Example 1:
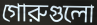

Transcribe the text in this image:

গোরুগুলো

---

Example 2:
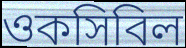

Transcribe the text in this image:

ওকসিবিল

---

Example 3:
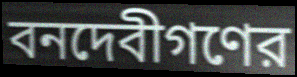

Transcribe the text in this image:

বনদেবীগণের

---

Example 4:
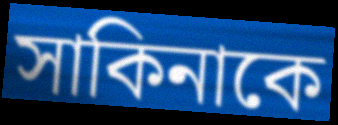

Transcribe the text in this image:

সাকিনাকে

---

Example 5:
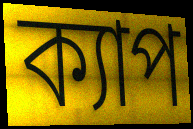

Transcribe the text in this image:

ক্যাপ